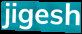
jigesh